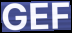
GEF